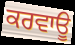
ਕਰਵਾਊ